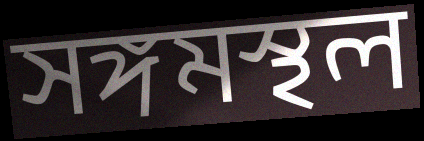
সঙ্গমস্থল